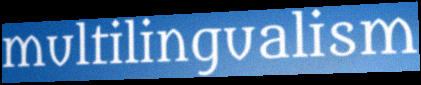
multilingualism